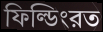
ফিল্ডিংরত